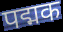
पद्मक